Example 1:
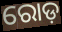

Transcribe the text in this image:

ରୋଡ଼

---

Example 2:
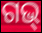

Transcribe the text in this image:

ଗଭ୍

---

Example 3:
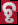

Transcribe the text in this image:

ଚୃ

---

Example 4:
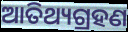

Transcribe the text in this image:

ଆତିଥ୍ୟଗ୍ରହଣ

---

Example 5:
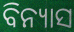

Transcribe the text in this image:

ବିନ୍ୟାସ